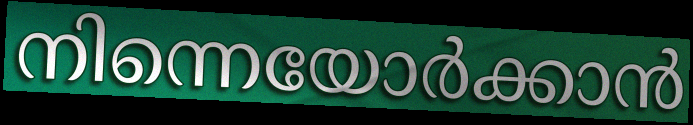
നിന്നെയോർക്കാൻ